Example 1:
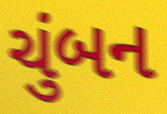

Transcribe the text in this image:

ચુંબન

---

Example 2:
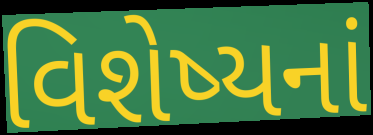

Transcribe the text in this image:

વિશેષ્યનાં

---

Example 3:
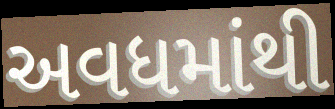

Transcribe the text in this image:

અવધમાંથી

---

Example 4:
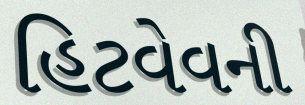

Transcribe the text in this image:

હિટવેવની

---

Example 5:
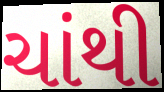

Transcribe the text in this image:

ચાંથી